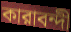
কারাবন্দী